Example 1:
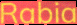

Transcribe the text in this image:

Rabia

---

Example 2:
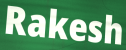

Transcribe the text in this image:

Rakesh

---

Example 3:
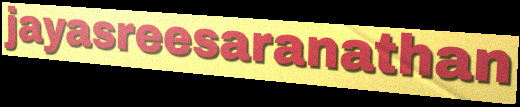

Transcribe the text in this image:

jayasreesaranathan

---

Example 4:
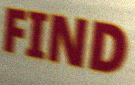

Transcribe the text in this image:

FIND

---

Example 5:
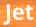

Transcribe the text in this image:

Jet